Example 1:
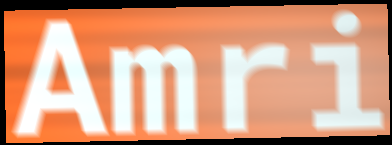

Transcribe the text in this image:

Amri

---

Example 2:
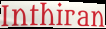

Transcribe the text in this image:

Inthiran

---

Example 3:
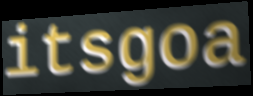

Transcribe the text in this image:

itsgoa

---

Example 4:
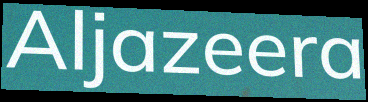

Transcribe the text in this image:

Aljazeera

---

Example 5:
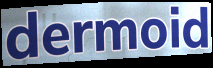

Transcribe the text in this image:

dermoid